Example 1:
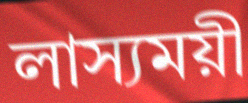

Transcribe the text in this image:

লাস্যময়ী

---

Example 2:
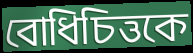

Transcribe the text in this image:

বোধিচিত্তকে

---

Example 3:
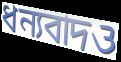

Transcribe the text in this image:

ধন্যবাদও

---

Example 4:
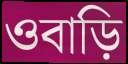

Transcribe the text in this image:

ওবাড়ি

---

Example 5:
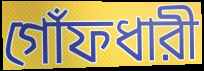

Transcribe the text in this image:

গোঁফধারী